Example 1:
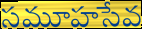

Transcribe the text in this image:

సమూహసేవ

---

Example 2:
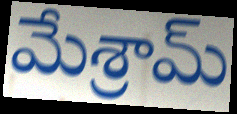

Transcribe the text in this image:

మేశ్రామ్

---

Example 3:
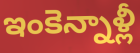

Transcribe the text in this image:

ఇంకెన్నాళ్లీ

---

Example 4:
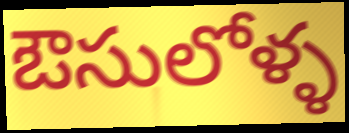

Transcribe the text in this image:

ఔసులోళ్ళ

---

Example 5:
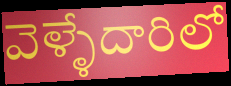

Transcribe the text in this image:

వెళ్ళేదారిలో